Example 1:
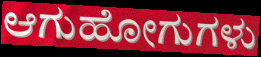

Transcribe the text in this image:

ಆಗುಹೋಗುಗಳು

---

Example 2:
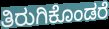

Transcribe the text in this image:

ತಿರುಗಿಕೊಂಡರೆ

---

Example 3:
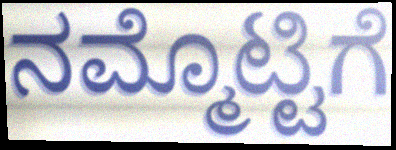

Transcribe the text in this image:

ನಮ್ಮೊಟ್ಟಿಗೆ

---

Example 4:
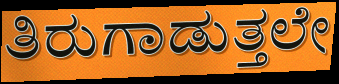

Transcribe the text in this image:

ತಿರುಗಾಡುತ್ತಲೇ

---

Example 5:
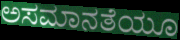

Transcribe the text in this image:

ಅಸಮಾನತೆಯೂ